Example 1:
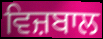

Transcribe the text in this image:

ਵਿਜ਼ਬਾਲ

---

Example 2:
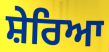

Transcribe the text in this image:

ਸ਼ੇਰਿਆ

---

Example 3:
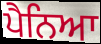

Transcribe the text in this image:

ਪੈਨਿਆ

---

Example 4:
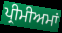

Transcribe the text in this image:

ਪ੍ਰੀਮੀਅਮਾਂ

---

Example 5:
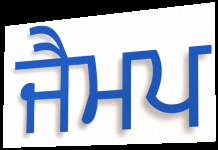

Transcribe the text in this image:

ਜੈਮਪ